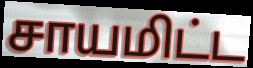
சாயமிட்ட